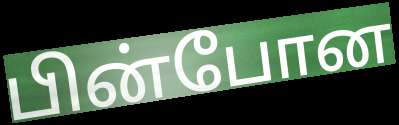
பின்போன